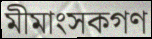
মীমাংসকগণ